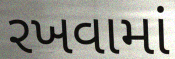
રખવામાં